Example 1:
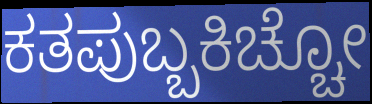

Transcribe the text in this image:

ಕತಪುಬ್ಬಕಿಚ್ಚೋ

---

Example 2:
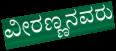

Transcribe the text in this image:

ವೀರಣ್ಣನವರು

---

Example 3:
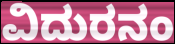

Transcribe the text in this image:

ವಿದುರನಂ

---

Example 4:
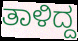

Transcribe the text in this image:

ತಾಳಿದ್ದ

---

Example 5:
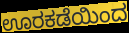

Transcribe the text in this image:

ಊರಕಡೆಯಿಂದ